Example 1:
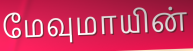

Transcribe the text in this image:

மேவுமாயின்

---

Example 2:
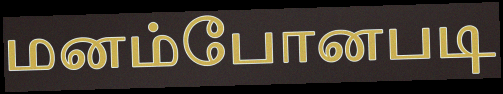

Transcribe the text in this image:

மனம்போனபடி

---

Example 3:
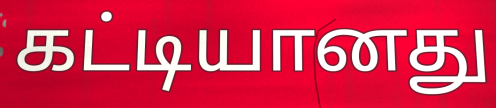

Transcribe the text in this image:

கட்டியானது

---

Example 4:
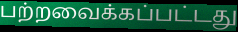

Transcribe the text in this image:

பற்றவைக்கப்பட்டது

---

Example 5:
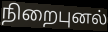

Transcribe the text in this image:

நிறைபுனல்